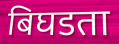
बिघडता